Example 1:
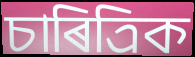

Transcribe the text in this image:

চাৰিত্ৰিক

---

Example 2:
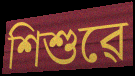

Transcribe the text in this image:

শিশুৱে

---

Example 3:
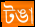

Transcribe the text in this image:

টঙা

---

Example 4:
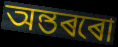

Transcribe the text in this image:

অন্তৰৰো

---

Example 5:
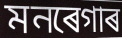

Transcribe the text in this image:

মনৰেগাৰ